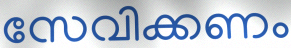
സേവിക്കണം